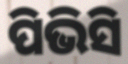
ପିଭିସି